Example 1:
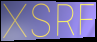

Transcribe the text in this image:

XSRF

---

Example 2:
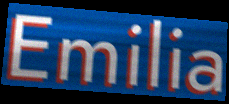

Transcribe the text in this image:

Emilia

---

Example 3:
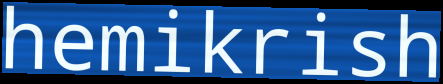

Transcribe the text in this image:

hemikrish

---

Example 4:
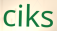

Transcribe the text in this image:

ciks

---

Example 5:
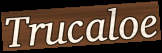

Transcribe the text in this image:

Trucaloe